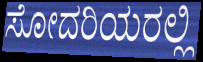
ಸೋದರಿಯರಲ್ಲಿ